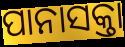
ପାନାସକ୍ତା